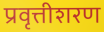
प्रवृत्तीशरण